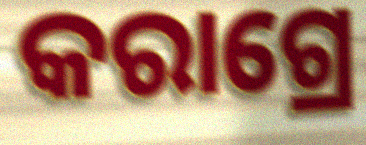
କରାଗ୍ରେ